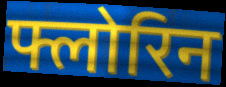
फ्लोरिन